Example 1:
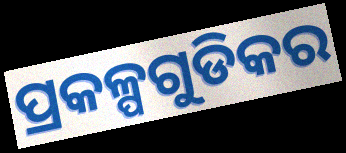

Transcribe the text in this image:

ପ୍ରକଳ୍ପଗୁଡିକର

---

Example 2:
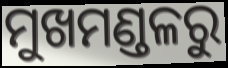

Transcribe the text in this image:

ମୁଖମଣ୍ଡଳରୁ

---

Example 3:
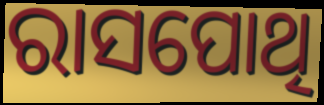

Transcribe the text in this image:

ରାସପୋଥି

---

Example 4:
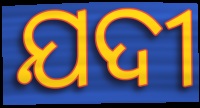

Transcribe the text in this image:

ଯଦୀ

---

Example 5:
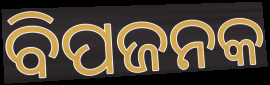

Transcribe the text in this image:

ବିପଜନକ